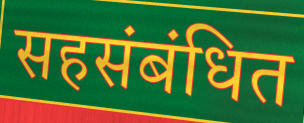
सहसंबंधित